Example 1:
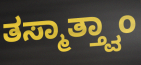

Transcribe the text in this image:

ತಸ್ಮಾತ್ತ್ವಾಂ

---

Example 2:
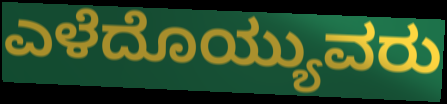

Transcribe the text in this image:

ಎಳೆದೊಯ್ಯುವರು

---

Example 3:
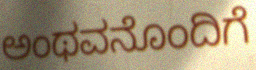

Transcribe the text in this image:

ಅಂಥವನೊಂದಿಗೆ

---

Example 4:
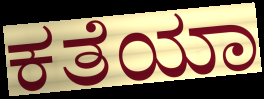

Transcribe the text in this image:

ಕತೆಯಾ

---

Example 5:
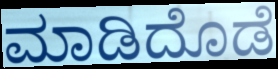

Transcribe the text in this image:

ಮಾಡಿದೊಡೆ